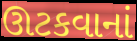
ઊટકવાનાં